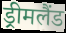
ड्रीमलैंड